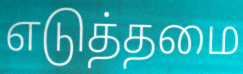
எடுத்தமை